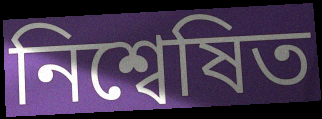
নিশ্বেষিত